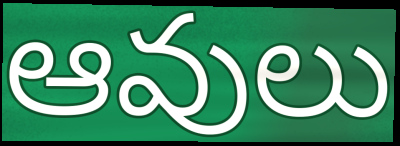
ఆవులు